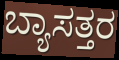
ಬ್ಯಾಸತ್ತರ